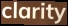
clarity